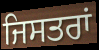
ਜਿਸਤਰਾਂ